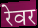
रेवर